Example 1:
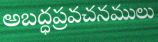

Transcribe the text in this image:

అబద్ధప్రవచనములు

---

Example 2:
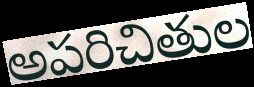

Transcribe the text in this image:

అపరిచితుల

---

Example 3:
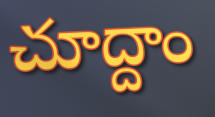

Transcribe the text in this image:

చూద్దాం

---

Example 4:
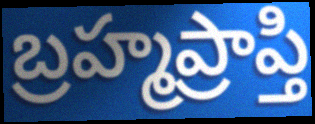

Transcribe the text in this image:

బ్రహ్మప్రాప్తి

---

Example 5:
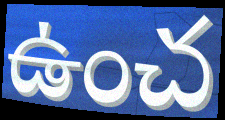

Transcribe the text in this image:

ఉంచ